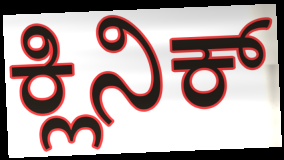
ಕ್ಲಿನಿಕ್